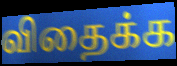
விதைக்க